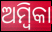
ଅମ୍ବିକା